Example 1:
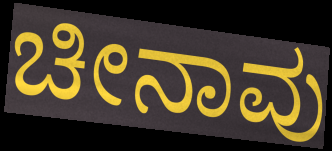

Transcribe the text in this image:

ಚೀನಾವು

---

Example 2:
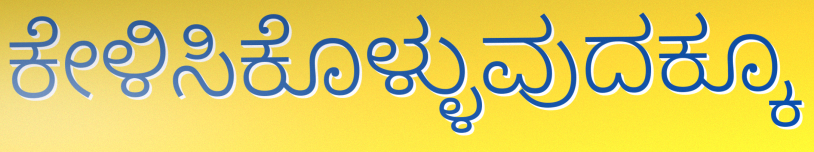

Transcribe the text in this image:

ಕೇಳಿಸಿಕೊಳ್ಳುವುದಕ್ಕೂ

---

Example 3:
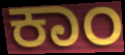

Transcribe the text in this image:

ಕಾಂ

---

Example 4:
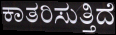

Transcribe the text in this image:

ಕಾತರಿಸುತ್ತಿದೆ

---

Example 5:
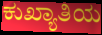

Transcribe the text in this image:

ಕುಖ್ಯಾತಿಯ